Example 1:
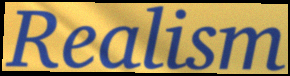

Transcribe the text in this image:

Realism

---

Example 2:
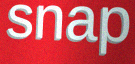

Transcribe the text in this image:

snap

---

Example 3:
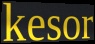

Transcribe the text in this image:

kesor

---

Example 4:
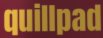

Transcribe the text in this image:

quillpad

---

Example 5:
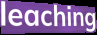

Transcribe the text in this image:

leaching